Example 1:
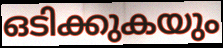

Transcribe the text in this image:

ഒടിക്കുകയും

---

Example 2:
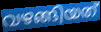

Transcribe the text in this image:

വഴങ്ങിയത്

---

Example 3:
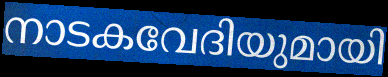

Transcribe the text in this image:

നാടകവേദിയുമായി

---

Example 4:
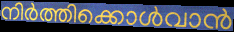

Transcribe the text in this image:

നിർത്തിക്കൊൾവാൻ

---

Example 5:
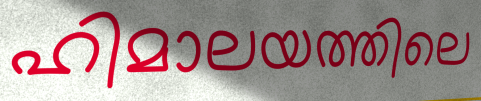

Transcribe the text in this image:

ഹിമാലയത്തിലെ